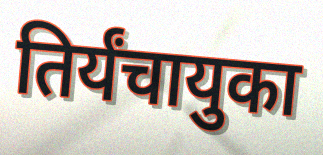
तिर्यंचायुका